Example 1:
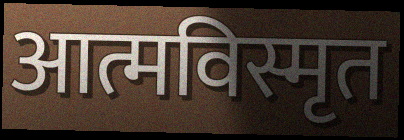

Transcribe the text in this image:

आत्मविस्मृत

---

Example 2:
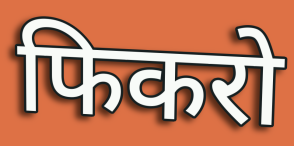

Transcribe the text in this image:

फिकरो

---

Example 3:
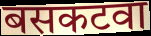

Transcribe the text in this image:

बसकटवा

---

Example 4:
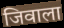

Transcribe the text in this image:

जिवाला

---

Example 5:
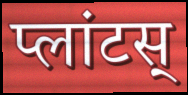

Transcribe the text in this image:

प्लांटस्